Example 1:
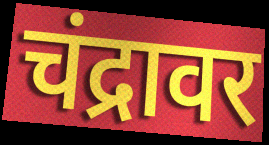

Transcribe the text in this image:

चंद्रावर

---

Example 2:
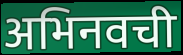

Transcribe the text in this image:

अभिनवची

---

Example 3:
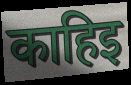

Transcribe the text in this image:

काहिइ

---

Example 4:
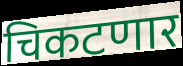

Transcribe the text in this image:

चिकटणार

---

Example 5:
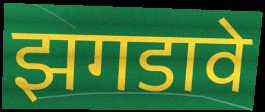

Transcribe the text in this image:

झगडावे